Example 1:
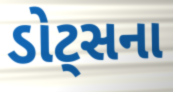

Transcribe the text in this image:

ડોટ્સના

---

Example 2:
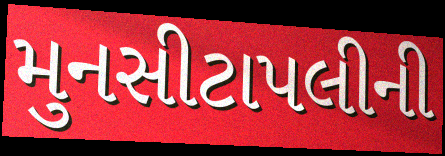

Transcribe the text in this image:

મુનસીટાપલીની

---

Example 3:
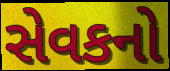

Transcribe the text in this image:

સેવકનો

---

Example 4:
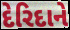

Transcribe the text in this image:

દેરિદાને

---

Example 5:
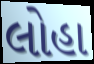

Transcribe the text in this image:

લોહા